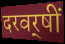
दरवर्षीं